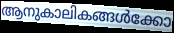
ആനുകാലികങ്ങൾക്കോ